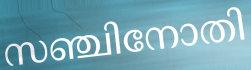
സഞ്ചിനോതി